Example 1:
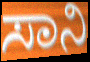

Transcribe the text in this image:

ಸಾನಿ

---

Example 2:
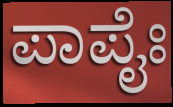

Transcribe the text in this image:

ಪಾಪೈಃ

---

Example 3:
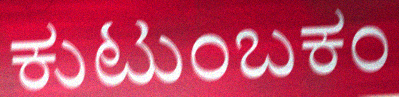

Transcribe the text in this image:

ಕುಟುಂಬಕಂ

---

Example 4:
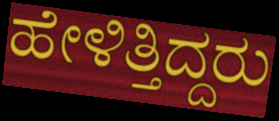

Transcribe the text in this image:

ಹೇಳಿತ್ತಿದ್ದರು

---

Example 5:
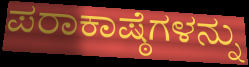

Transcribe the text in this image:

ಪರಾಕಾಷ್ಠೆಗಳನ್ನು